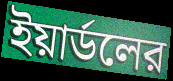
ইয়ার্ডলের